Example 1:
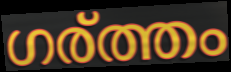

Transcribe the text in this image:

ഗര്ത്തം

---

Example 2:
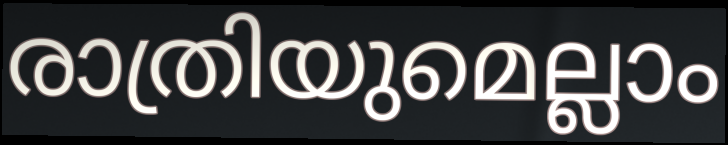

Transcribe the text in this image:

രാത്രിയുമെല്ലാം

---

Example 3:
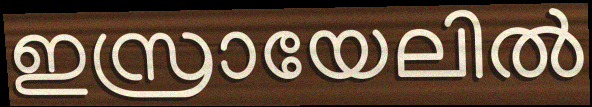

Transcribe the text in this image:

ഇസ്രായേലിൽ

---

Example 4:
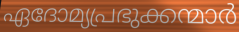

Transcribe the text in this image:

ഏദോമ്യപ്രഭുക്കന്മാർ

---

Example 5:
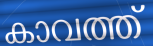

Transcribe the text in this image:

കാവത്ത്